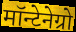
मॉन्टेनेग्रो